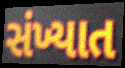
સંખ્યાત